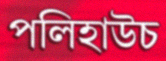
পলিহাউচ